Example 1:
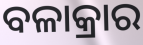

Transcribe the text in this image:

ବଳାକ୍ରାର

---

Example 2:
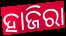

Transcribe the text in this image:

ହାଜିରା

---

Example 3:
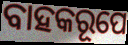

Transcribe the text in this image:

ବାହକରୂପେ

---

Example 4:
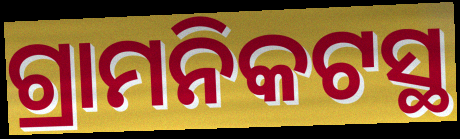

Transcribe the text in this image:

ଗ୍ରାମନିକଟସ୍ଥ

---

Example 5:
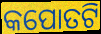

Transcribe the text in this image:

କପୋତଟି